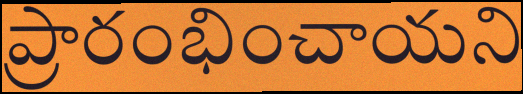
ప్రారంభించాయని